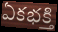
ఏకభక్తి